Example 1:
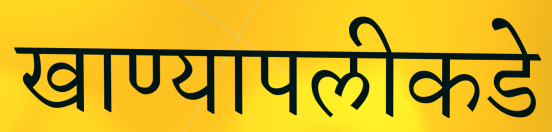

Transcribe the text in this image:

खाण्यापलीकडे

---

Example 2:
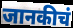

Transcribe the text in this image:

जानकीचं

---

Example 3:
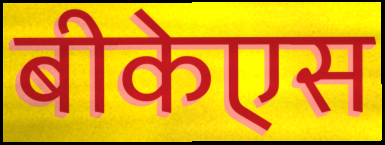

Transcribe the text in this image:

बीकेएस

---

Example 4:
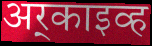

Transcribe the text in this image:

अर्काइव्ह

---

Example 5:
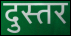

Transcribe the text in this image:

दुस्तर